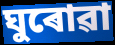
ঘুৰোৱা